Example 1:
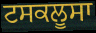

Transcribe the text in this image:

ਟਸਕਲੂਸਾ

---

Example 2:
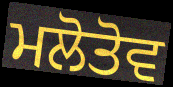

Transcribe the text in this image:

ਮਲੋਤੋਵ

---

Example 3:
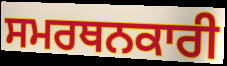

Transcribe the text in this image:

ਸਮਰਥਨਕਾਰੀ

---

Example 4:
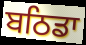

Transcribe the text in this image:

ਬਠਿਡਾ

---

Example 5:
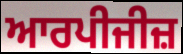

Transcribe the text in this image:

ਆਰਪੀਜੀਜ਼